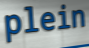
plein